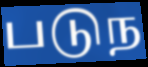
படுந